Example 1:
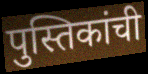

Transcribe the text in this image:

पुस्तिकांची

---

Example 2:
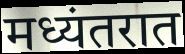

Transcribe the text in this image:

मध्यंतरात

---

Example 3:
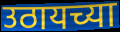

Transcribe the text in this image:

उठायच्या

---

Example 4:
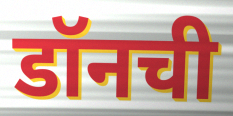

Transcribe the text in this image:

डॉनची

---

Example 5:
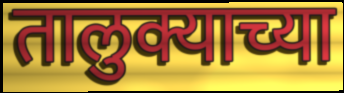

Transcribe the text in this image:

तालुक्याच्या